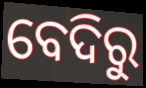
ବେଦିରୁ